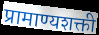
प्रामाण्यशक्ती